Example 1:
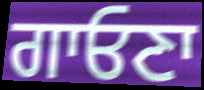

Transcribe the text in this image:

ਗਾਓਣਾ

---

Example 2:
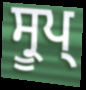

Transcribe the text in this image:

ਸ੍ਰੂਪ੍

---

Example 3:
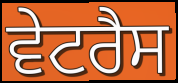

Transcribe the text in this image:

ਵੇਟਰੈਸ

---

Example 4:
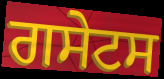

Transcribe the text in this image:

ਗਸੇਟਸ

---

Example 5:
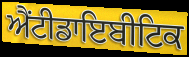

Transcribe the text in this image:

ਐਂਟੀਡਾਇਬੀਟਿਕ